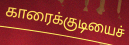
காரைக்குடியைச்